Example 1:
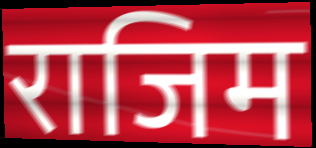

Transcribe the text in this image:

राजिम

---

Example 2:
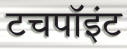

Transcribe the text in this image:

टचपॉइंट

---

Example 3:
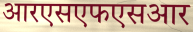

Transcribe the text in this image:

आरएसएफएसआर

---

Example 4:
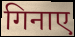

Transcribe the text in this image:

गिनाए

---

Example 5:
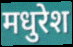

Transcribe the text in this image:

मधुरेश